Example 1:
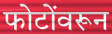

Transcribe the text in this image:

फोटोंवरून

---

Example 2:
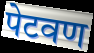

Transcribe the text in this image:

पेटवण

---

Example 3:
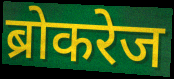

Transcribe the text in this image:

ब्रोकरेज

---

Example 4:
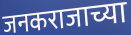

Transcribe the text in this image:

जनकराजाच्या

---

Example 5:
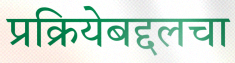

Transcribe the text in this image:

प्रक्रियेबद्दलचा